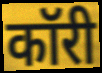
कॉरी